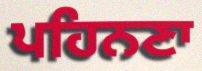
ਪਹਿਨਣਾ